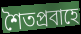
শৈতপ্রবাহে